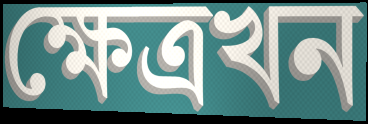
ক্ষেত্ৰখন